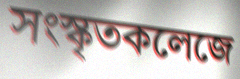
সংস্কৃতকলেজে